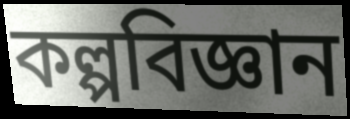
কল্পবিজ্ঞান